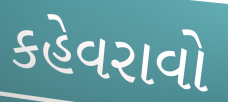
કહેવરાવો